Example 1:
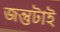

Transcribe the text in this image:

জন্তুটাই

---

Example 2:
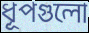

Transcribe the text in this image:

ধূপগুলো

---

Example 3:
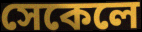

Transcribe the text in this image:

সেকেলে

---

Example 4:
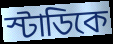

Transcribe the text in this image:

স্টাডিকে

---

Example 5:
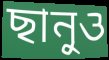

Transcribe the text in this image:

ছানুও